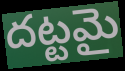
దట్టమై